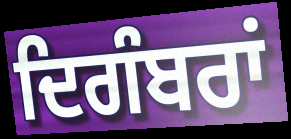
ਦਿਗੰਬਰਾਂ